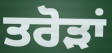
ਤਰੋੜਾਂ